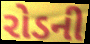
રોડની